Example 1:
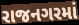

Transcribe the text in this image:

રાજનગરમાં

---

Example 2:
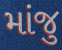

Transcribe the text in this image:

માંજુ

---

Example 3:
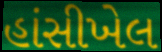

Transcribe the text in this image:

હાંસીખેલ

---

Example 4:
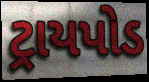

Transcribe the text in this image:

ટ્રાયપોડ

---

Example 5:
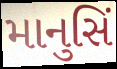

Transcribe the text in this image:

માનુસિં